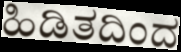
ಹಿಡಿತದಿಂದ